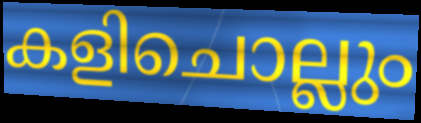
കളിചൊല്ലും